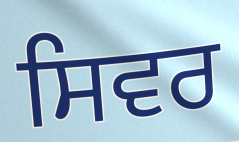
ਸਿਵਰ